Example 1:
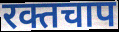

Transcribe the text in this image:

रक्तचाप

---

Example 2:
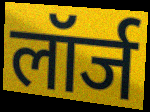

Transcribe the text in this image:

लॉर्ज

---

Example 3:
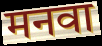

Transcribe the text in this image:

मनवा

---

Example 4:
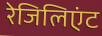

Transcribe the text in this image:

रेजिलिएंट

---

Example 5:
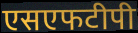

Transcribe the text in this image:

एसएफटीपी